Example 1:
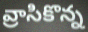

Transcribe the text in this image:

వ్రాసికొన్న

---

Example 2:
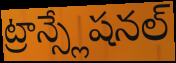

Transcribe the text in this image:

ట్రాన్స్లేషనల్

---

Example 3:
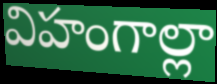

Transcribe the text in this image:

విహంగాల్లా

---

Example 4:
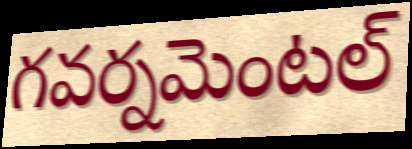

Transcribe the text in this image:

గవర్నమెంటల్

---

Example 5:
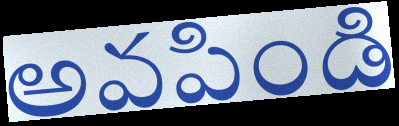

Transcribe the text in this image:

అవపిండి